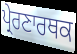
ਪ੍ਰੇਰਣਾਰਥਕ